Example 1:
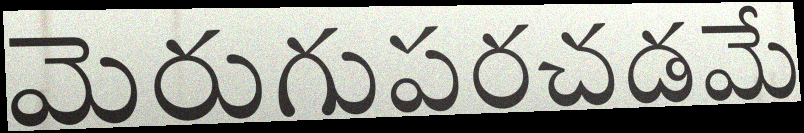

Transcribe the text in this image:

మెరుగుపరచడమే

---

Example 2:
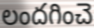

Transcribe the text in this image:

లందగించె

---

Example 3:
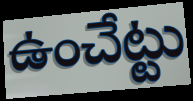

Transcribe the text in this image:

ఉంచేట్టు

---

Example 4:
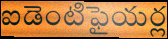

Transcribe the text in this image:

ఐడెంటిఫైయర్ల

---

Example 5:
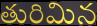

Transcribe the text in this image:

తురిమిన